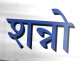
शन्नो